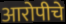
आरोपीचे